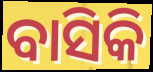
ବାସିକି